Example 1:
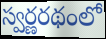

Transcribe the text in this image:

స్వర్ణరథంలో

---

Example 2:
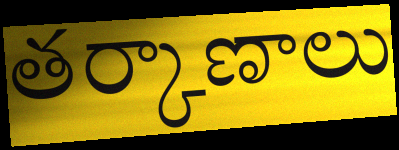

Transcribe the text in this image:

తర్కాణాలు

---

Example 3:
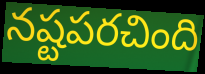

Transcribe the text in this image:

నష్టపరచింది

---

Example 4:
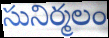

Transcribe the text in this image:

సునిర్మలం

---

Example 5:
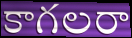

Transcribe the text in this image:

కాగలరా